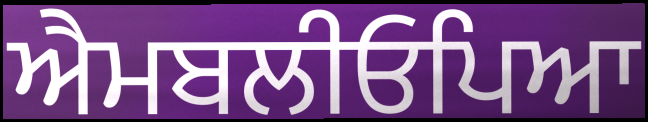
ਐਮਬਲੀਓਪਿਆ